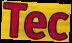
Tec